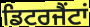
ਡਿਟਰਜੈਂਟਾਂ